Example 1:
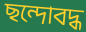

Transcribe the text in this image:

ছন্দোবদ্ধ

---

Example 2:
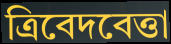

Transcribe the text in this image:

ত্রিবেদবেত্তা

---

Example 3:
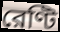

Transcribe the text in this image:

রেণ্টি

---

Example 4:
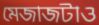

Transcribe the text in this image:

মেজাজটাও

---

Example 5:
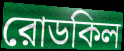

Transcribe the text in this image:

রোডকিল